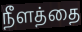
நீளத்தை